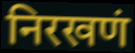
निरखणं